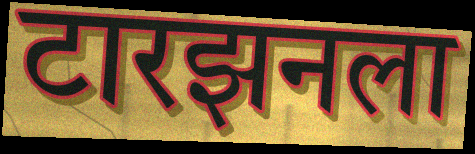
टारझनला